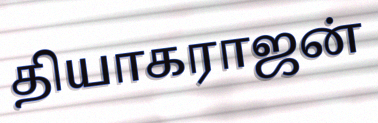
தியாகராஜன்